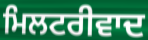
ਮਿਲਟਰੀਵਾਦ